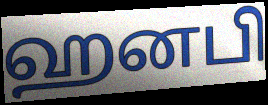
ஹனபி